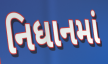
નિધાનમાં